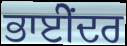
ਭਾਈੇਂਦਰ